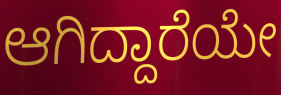
ಆಗಿದ್ದಾರೆಯೇ